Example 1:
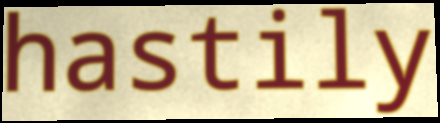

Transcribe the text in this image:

hastily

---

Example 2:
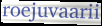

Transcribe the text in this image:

roejuvaarii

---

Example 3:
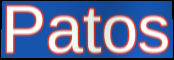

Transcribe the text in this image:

Patos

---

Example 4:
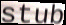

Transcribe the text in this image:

stub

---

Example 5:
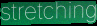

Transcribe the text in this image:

stretching